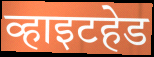
व्हाइटहेड